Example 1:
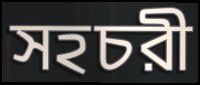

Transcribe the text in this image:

সহচরী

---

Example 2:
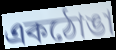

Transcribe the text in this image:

একঠোঙা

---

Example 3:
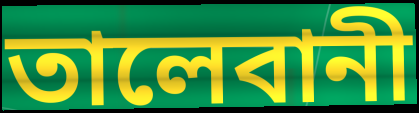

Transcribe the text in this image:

তালেবানী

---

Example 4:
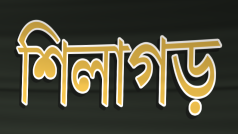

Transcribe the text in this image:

শিলাগড়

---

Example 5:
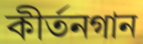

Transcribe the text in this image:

কীর্তনগান